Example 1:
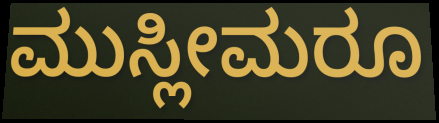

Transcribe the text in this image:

ಮುಸ್ಲೀಮರೂ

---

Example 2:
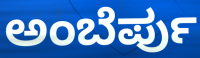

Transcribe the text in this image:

ಅಂಬೆರ್ಪು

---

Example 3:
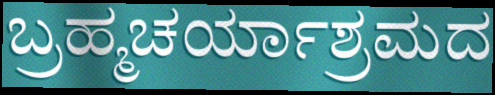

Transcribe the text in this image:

ಬ್ರಹ್ಮಚರ್ಯಾಶ್ರಮದ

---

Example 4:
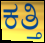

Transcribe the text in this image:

ಕತ್ತಿ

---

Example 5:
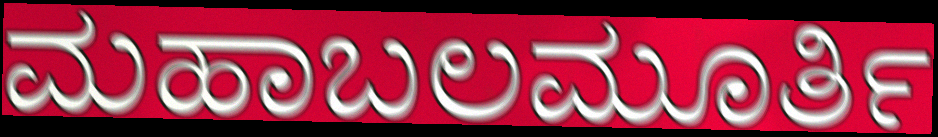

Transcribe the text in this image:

ಮಹಾಬಲಮೂರ್ತಿ